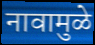
नावामुळे